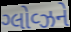
ગ્લોવ્ઝને